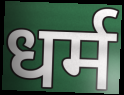
धर्म